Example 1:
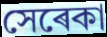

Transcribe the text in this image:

সেৰেকা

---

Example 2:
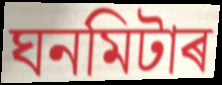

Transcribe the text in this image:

ঘনমিটাৰ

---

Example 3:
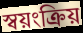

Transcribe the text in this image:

স্বয়ংক্ৰিয়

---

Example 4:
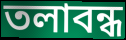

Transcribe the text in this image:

তলাবন্ধ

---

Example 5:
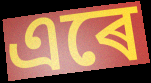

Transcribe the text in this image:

এৰে